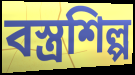
বস্ত্রশিল্প